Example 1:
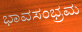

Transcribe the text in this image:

ಭಾವಸಂಭ್ರಮ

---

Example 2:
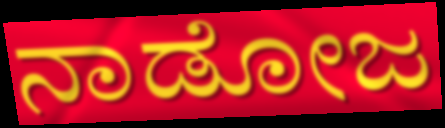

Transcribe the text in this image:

ನಾಡೋಜ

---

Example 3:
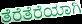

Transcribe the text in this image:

ತೆರೆತೆರೆಯಾಗಿ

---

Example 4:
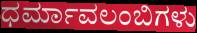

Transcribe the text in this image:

ಧರ್ಮಾವಲಂಬಿಗಳು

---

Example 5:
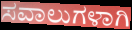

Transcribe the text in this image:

ಸವಾಲುಗಳಾಗಿ